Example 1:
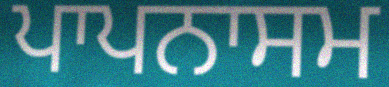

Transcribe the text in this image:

ਪਾਪਨਾਸਮ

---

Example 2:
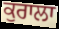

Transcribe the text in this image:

ਕੁਰਾਲਾ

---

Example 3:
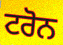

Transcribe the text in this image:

ਟਰੋਨ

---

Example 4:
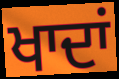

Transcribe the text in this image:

ਖਾਦਾਂ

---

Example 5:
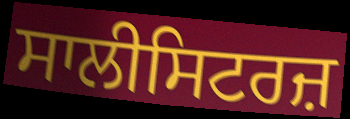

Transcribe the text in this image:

ਸਾਲੀਸਿਟਰਜ਼